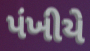
પંખીયે